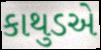
કાથુડએ